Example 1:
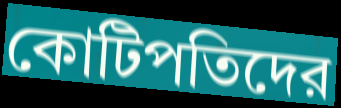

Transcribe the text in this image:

কোটিপতিদের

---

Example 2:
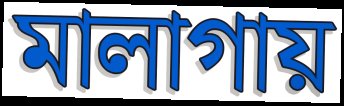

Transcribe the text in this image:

মালাগায়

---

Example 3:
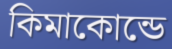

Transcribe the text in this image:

কিমাকোন্ডে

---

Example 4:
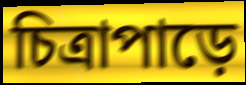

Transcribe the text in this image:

চিত্রাপাড়ে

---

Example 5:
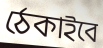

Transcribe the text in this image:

ঠেকাইবে